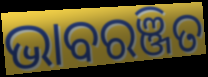
ଭାବରଞ୍ଜିତ